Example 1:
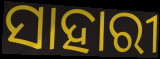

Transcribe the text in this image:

ସାହାରୀ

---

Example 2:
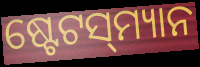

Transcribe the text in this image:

ଷ୍ଟେଟସ୍‌ମ୍ୟାନ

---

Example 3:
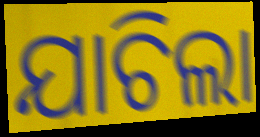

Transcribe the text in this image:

ଯାଚିଲା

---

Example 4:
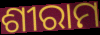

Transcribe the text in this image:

ଶୀରାମ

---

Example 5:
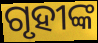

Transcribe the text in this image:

ଗୃହୀଙ୍କ